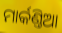
ମାର୍କଣ୍ତିଆ